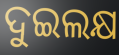
ଦୁଇଲକ୍ଷ